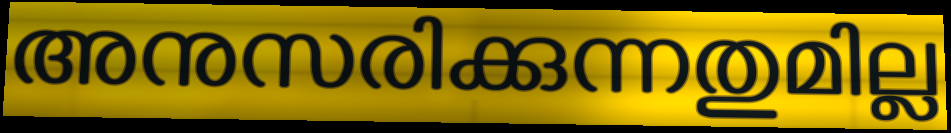
അനുസരിക്കുന്നതുമില്ല